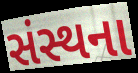
સંસ્થના